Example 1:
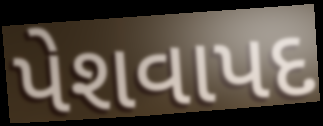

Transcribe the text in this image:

પેશવાપદ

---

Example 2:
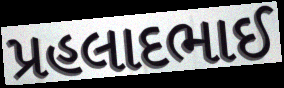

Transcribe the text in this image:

પ્રહલાદભાઈ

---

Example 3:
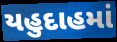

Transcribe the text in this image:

યહુદાહમાં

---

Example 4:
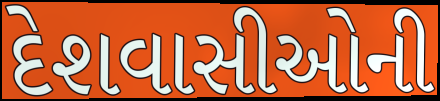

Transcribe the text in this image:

દેશવાસીઓની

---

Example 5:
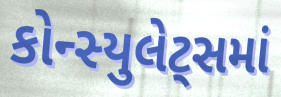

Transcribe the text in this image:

કોન્સ્યુલેટ્સમાં